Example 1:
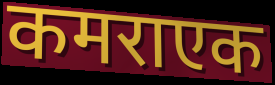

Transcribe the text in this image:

कमराएक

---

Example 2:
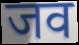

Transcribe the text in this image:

जव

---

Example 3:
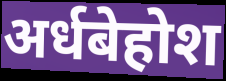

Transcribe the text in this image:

अर्धबेहोश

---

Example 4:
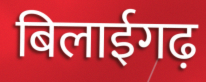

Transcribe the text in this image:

बिलाईगढ़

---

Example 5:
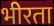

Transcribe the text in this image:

भीरता